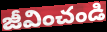
జీవించండి